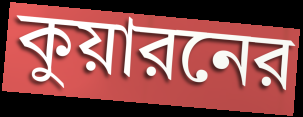
কুয়ারনের